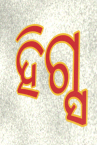
ହିଗ୍ସ